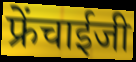
फ्रेंचाईजी